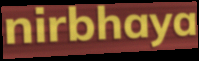
nirbhaya